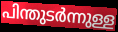
പിന്തുടർന്നുള്ള